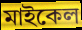
মাইকেল